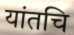
यांतचि